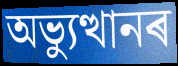
অভ্যুত্থানৰ